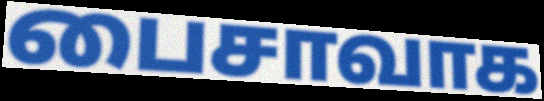
பைசாவாக